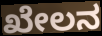
ಖೇಲನ